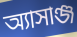
অ্যাসাঞ্জ